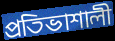
প্ৰতিভাশালী